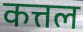
कत्तल